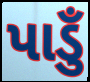
પાડુઁ